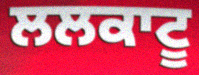
ਲਲਕਾਟੂ